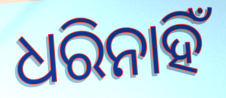
ଧରିନାହିଁ